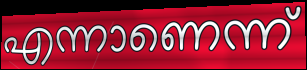
എന്നാണെന്ന്